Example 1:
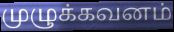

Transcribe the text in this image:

முழுக்கவனம்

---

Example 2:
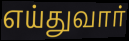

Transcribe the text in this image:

எய்துவார்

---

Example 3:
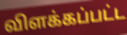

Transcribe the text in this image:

விளக்கப்பட்ட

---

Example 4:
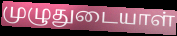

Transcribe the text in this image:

முழுதுடையாள்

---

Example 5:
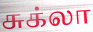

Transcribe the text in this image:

சுக்லா